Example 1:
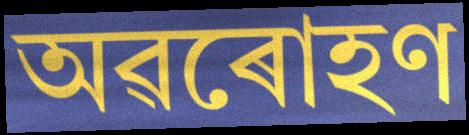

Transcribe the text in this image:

অৱৰোহণ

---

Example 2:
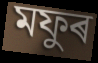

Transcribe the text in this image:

মফুৰ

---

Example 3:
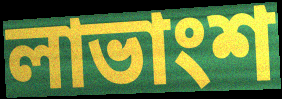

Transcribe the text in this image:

লাভাংশ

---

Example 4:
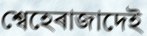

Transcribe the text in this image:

শ্বেহেৰাজাদেই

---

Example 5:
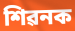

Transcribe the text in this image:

শিৱনক